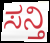
ಸನ್ತಿ